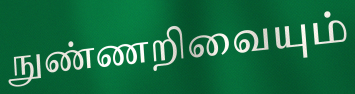
நுண்ணறிவையும்